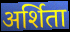
अर्शिता